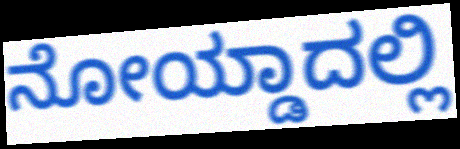
ನೋಯ್ಡಾದಲ್ಲಿ